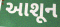
આશૂન